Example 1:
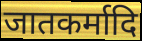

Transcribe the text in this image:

जातकर्मादि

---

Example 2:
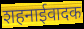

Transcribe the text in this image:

शहनाईवादक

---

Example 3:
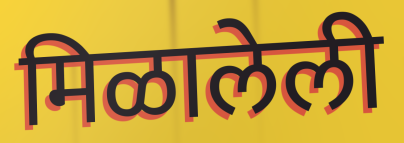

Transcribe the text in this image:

मिळालेली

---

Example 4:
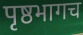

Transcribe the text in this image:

पृष्ठभागच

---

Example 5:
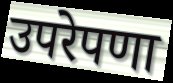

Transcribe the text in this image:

उपरेपणा